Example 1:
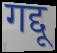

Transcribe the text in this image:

गद्दू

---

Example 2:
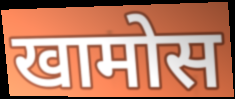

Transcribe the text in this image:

खामोस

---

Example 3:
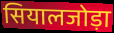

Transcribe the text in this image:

सियालजोड़ा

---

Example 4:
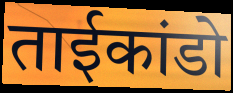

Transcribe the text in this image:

ताईकांडो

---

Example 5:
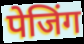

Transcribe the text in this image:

पेजिंग